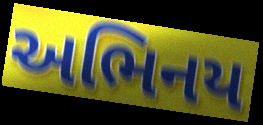
અભિનય